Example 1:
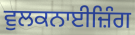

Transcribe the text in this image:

ਵੁਲਕਨਾਈਜ਼ਿੰਗ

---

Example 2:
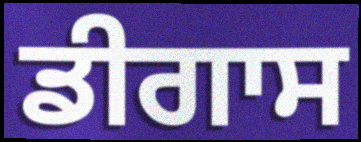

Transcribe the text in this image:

ਡੀਗਾਸ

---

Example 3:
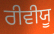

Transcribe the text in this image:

ਰੀਵੀਯੂ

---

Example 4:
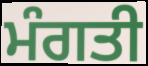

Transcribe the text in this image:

ਮੰਗਤੀ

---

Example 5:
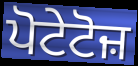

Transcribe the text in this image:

ਪੋਟੇਟੋਜ਼